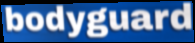
bodyguard